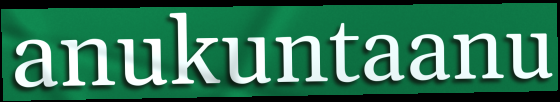
anukuntaanu